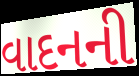
વાદનની